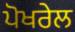
ਪੋਖਰੇਲ